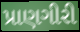
પ્રાણગીરી